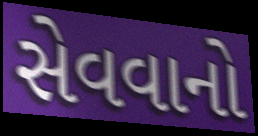
સેવવાનો